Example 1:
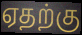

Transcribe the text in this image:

ஏதற்கு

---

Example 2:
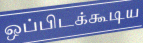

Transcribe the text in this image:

ஒப்பிடக்கூடிய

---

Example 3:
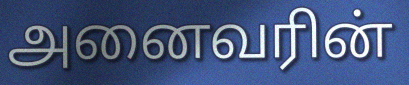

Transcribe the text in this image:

அனைவரின்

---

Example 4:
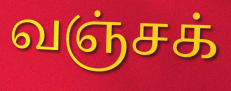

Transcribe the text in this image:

வஞ்சக்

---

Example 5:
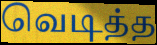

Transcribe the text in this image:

வெடித்த